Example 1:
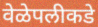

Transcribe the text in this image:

वेळेपलीकडे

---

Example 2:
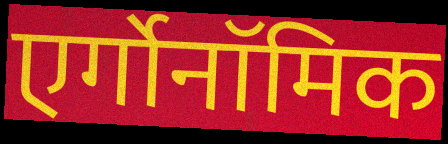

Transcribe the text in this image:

एर्गोनॉमिक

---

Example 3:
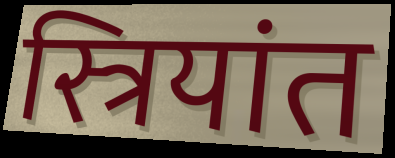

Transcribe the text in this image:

स्त्रियांत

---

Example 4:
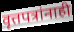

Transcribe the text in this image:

वृत्तपत्रांनाही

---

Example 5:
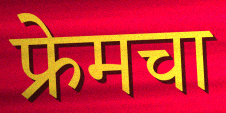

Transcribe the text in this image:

फ्रेमचा